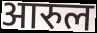
आरुल